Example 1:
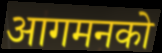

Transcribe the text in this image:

आगमनको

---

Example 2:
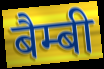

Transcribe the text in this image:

बैम्बी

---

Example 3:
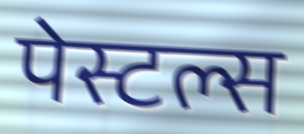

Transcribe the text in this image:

पेस्टल्स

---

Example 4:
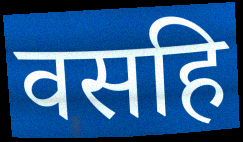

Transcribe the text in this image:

वसहि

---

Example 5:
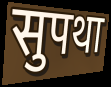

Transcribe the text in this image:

सुपथा